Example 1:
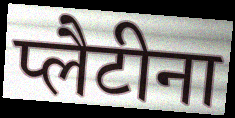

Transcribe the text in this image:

प्लैटीना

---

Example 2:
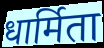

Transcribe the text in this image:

धार्मिता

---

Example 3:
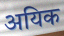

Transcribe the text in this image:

अयिक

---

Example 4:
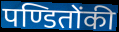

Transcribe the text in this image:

पण्डितोंकी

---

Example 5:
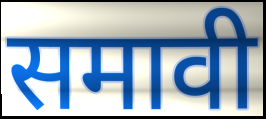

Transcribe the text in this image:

समावी